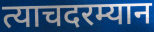
त्याचदरम्यान